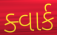
ક્વાર્ક